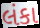
લંકા